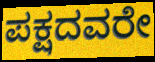
ಪಕ್ಷದವರೇ